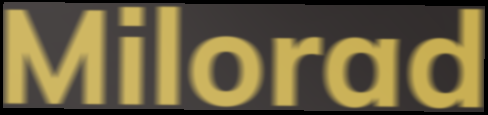
Milorad